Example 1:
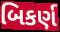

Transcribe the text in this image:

બિકર્ણ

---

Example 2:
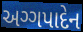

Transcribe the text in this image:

અગ્ગપાદેન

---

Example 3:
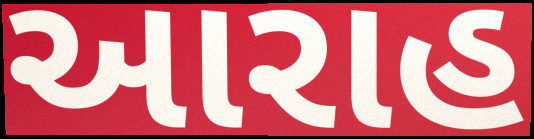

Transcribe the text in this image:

આરાહ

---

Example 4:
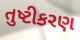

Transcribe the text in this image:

તુષ્ટીકરણ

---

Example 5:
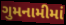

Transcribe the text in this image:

ગુમનામીમાં